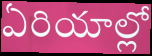
ఏరియాల్లో